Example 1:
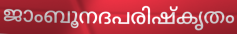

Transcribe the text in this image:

ജാംബൂനദപരിഷ്കൃതം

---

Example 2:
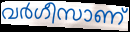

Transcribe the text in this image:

വർഗീസാണ്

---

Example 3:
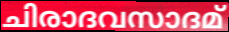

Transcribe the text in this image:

ചിരാദവസാദമ്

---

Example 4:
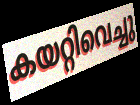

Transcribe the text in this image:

കയറ്റിവെച്ചു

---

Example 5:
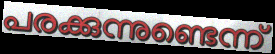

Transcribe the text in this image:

പരക്കുന്നുണ്ടെന്ന്